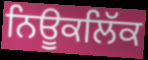
ਨਿਊਕਲਿੱਕ